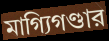
মাগ্যিগণ্ডার